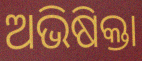
ଅଭିଷିକ୍ତା